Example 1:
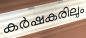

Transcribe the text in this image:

കർഷകരിലും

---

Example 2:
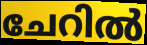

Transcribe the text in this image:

ചേറിൽ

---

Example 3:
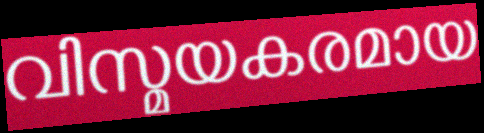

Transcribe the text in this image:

വിസ്മയകരമായ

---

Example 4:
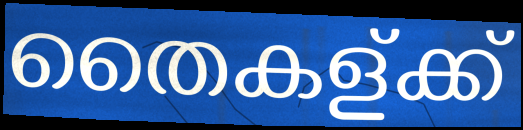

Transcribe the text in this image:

തൈകള്ക്ക്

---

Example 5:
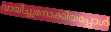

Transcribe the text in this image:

വായിച്ചുനോക്കിയപ്പോൾ